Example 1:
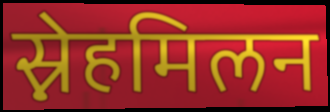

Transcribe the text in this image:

स्नेहमिलन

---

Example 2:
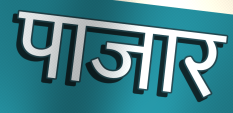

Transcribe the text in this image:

पाजार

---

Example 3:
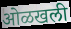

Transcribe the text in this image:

ओळखली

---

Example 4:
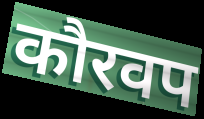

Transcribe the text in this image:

कौरवप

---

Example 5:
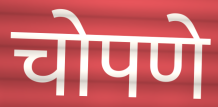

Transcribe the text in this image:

चोपणे